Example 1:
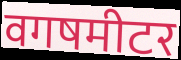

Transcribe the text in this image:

वगषमीटर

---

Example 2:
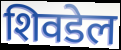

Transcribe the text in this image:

शिवडेल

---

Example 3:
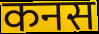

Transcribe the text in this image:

कनस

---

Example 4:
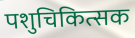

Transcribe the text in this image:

पशुचिकित्सक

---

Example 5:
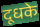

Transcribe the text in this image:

दूधके